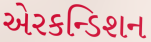
એરકન્ડિશન